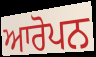
ਆਰੋਪਨ